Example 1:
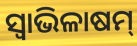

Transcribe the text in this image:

ସ୍ବାଭିଳାଷମ୍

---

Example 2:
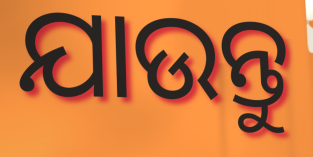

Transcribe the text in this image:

ଯାଉନ୍ତୁ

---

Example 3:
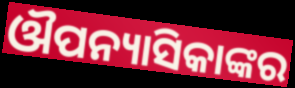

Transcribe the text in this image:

ଔପନ୍ୟାସିକାଙ୍କର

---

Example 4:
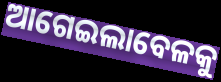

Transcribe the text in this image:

ଆଗେଇଲାବେଳକୁ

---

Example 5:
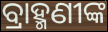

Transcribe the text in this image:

ବ୍ରାହ୍ମଣୀଙ୍କ